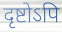
दृष्टोऽपि